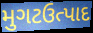
મુગટઉત્પાદ